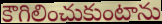
కౌగిలించుకుంటాను